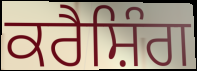
ਕਰੈਸ਼ਿੰਗ